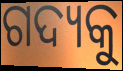
ଗଦ୍ୟକୁ